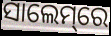
ସାଲେମ୍‌ରେ